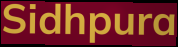
Sidhpura